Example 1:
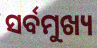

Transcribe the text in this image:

ସର୍ବମୁଖ୍ୟ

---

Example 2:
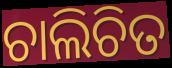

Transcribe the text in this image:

ଚାଲିଚିତ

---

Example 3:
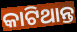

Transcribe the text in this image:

କାଟିଥାନ୍ତ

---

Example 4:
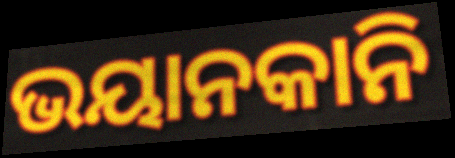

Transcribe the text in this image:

ଭୟାନକାନି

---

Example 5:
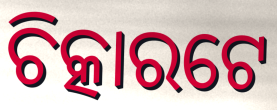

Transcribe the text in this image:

ଚିତ୍କାରଟେ